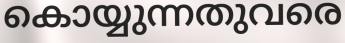
കൊയ്യുന്നതുവരെ